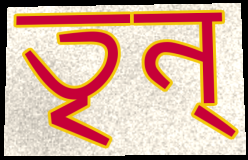
তৃন্